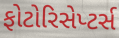
ફોટોરિસેપ્ટર્સ